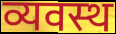
व्यवस्थ